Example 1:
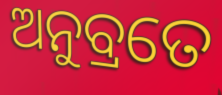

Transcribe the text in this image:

ଅନୁବ୍ରତେ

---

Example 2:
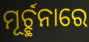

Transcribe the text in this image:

ମୂର୍ଚ୍ଛନାରେ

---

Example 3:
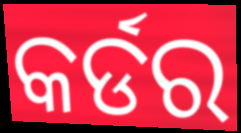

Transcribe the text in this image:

କର୍ଡର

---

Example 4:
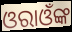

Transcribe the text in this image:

ଓରାଓଁଙ୍କ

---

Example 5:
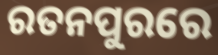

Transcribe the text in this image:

ରତନପୁରରେ